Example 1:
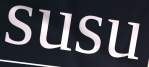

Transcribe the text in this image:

susu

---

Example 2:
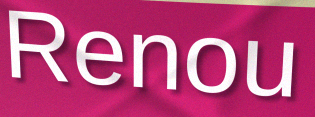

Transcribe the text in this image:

Renou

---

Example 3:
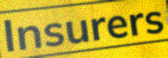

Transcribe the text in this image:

Insurers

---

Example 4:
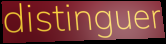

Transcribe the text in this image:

distinguer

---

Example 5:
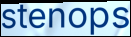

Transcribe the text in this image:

stenops